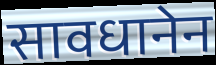
सावधानेन